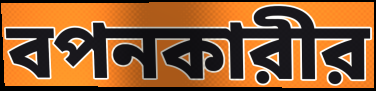
বপনকারীর